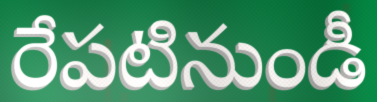
రేపటినుండీ